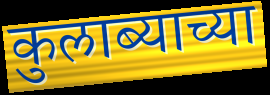
कुलाब्याच्या